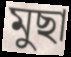
মুছা